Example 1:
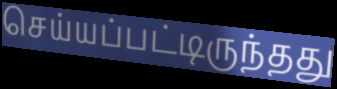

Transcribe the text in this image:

செய்யப்பட்டிருந்தது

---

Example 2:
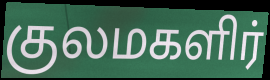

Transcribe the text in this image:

குலமகளிர்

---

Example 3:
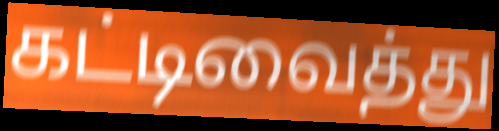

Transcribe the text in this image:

கட்டிவைத்து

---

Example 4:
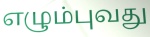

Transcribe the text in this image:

எழும்புவது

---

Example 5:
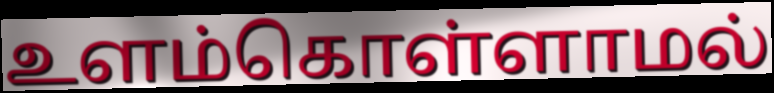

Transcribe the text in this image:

உளம்கொள்ளாமல்